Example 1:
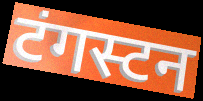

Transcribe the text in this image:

टंगस्टन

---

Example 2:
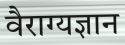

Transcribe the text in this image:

वैराग्यज्ञान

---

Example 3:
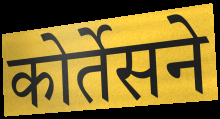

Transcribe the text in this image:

कोर्तेसने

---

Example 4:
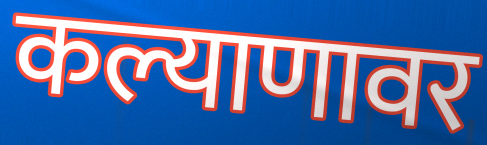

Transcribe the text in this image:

कल्याणावर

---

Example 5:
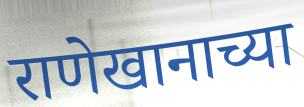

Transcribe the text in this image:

राणेखानाच्या